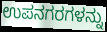
ಉಪನಗರಗಳನ್ನು